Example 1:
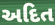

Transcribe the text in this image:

અદિત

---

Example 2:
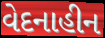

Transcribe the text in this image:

વેદનાહીન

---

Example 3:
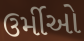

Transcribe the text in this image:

ઉર્મીઓ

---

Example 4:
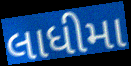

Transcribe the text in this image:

લાધીમા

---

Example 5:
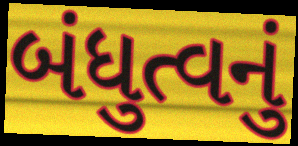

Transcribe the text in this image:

બંધુત્વનું